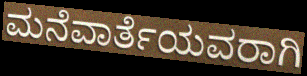
ಮನೆವಾರ್ತೆಯವರಾಗಿ